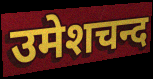
उमेशचन्द